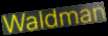
Waldman